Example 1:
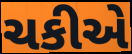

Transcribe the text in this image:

ચકીએ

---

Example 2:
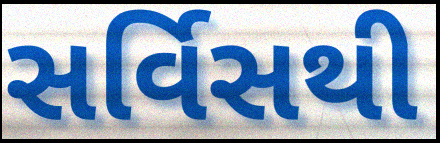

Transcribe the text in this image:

સર્વિસથી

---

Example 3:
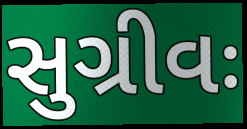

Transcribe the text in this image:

સુગ્રીવઃ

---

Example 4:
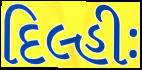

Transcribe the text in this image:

દિલ્હીઃ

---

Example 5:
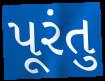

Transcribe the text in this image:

પૂરંતુ